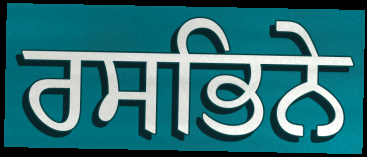
ਰਸਭਿਨੇ